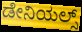
ಡೇನಿಯಲ್ಸ್